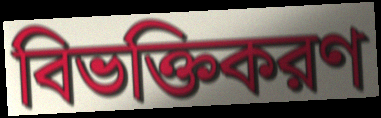
বিভক্তিকরণ